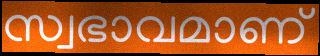
സ്വഭാവമാണ്